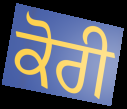
ਕੋਰੀ